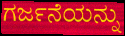
ಗರ್ಜನೆಯನ್ನು